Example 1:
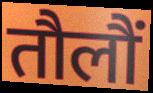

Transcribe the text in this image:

तौलौं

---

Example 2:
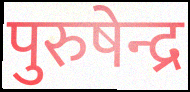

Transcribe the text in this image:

पुरुषेन्द्र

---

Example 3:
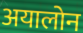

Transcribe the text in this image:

अयालोन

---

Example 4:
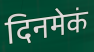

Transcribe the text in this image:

दिनमेकं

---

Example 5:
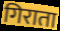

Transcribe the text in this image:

गिराता